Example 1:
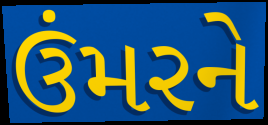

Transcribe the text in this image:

ઉંમરને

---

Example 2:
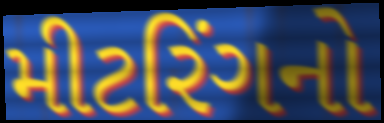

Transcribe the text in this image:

મીટરિંગનો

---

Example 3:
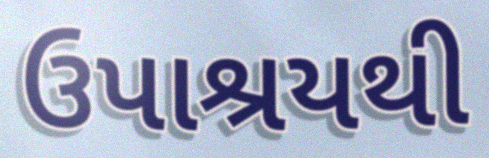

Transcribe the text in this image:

ઉપાશ્રયથી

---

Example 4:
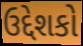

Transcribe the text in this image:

ઉદ્દેશકો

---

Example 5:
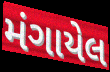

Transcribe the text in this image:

મંગાયેલ